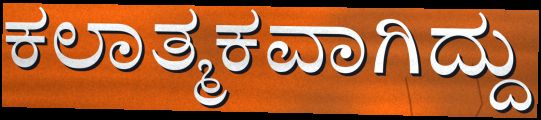
ಕಲಾತ್ಮಕವಾಗಿದ್ದು